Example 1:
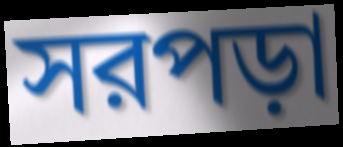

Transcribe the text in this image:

সরপড়া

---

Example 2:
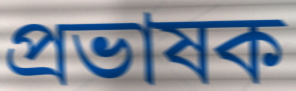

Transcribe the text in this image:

প্রভাষক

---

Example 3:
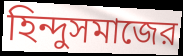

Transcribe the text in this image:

হিন্দুসমাজের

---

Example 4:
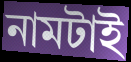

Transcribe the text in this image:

নামটাই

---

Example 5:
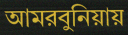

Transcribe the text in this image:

আমরবুনিয়ায়